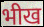
भीख